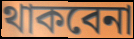
থাকবেনা